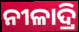
ନୀଳାଦ୍ରି